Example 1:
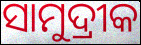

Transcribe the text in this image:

ସାମୁଦ୍ରୀକ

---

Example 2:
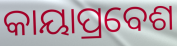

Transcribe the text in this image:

କାୟାପ୍ରବେଶ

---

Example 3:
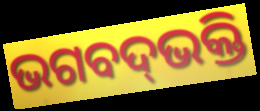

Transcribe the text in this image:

ଭଗବଦ୍‌ଭକ୍ତି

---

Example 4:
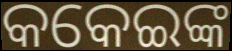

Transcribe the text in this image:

କକେଇଙ୍କ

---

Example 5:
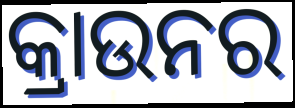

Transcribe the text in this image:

କ୍ରାଉନର